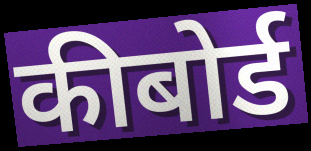
कीबोर्ड